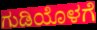
ಗುಡಿಯೊಳಗೆ